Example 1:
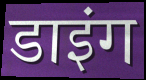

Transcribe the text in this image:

डाइंग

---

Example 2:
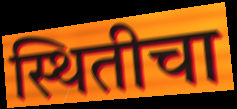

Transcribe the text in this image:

स्थितीचा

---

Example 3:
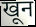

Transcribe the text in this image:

खून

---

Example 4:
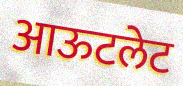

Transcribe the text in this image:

आऊटलेट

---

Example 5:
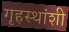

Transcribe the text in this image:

गृहस्थांशी